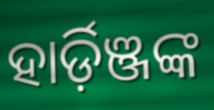
ହାର୍ଡ଼ିଞ୍ଜଙ୍କ